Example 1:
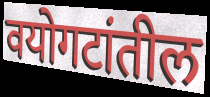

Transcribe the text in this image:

वयोगटांतील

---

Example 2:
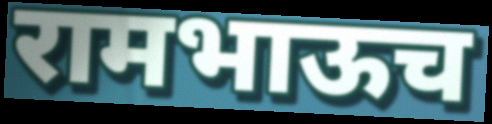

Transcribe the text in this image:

रामभाऊच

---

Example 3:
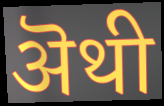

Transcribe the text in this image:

ऄथी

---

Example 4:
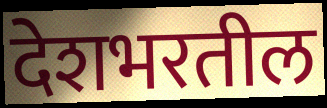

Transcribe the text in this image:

देशभरतील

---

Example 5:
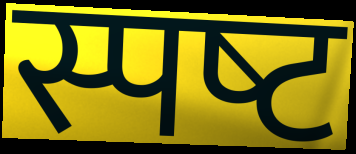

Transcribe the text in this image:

स्‍पष्‍ट